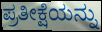
ಪ್ರತೀಕ್ಷೆಯನ್ನು